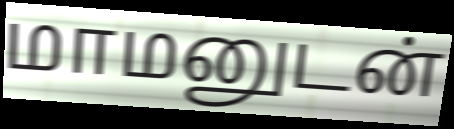
மாமனுடன்